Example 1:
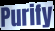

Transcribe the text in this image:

Purify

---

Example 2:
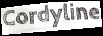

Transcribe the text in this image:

Cordyline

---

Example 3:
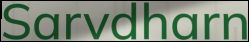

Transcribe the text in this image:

Sarvdharn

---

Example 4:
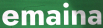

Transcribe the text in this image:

emaina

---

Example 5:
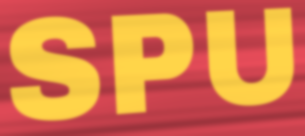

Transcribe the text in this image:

SPU